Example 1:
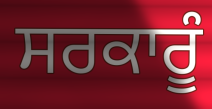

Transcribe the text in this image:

ਸਰਕਾਰੂੰ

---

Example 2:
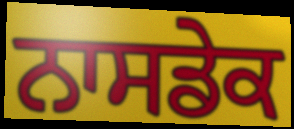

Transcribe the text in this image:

ਨਾਸਡੇਕ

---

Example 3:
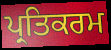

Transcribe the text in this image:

ਪ੍ਰਤਿਕਰਮ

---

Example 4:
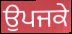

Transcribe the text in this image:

ਉਪਜਕੇ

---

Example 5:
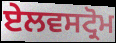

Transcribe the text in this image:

ਏਲਵਸਟ੍ਰੋਮ